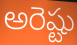
అరెష్టు